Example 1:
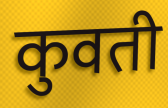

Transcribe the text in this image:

कुवती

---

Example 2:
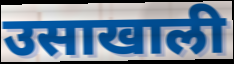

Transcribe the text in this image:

उसाखाली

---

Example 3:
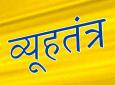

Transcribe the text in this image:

व्यूहतंत्र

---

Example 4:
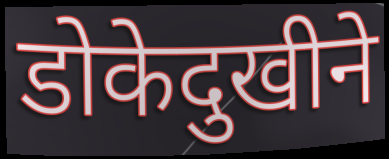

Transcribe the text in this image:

डोकेदुखीने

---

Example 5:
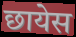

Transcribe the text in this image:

छायेस